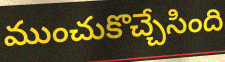
ముంచుకొచ్చేసింది